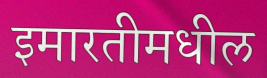
इमारतीमधील